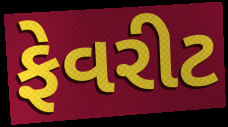
ફેવરીટ